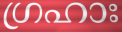
ഗ്രഹാഃ